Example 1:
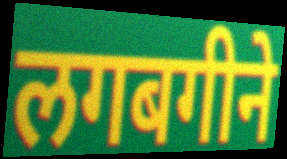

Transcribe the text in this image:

लगबगीने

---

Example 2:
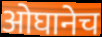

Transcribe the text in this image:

ओघानेच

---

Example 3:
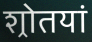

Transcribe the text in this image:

श्रोतयां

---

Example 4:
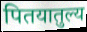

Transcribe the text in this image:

पितयातुल्य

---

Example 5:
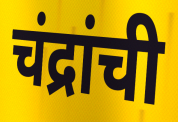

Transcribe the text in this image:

चंद्रांची